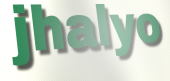
jhalyo